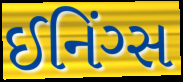
ઈનિંગ્સ